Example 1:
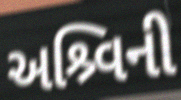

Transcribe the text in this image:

અશ્ર્વિની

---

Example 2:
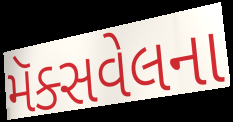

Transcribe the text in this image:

મૅક્સવેલના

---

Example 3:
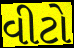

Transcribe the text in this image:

વીટો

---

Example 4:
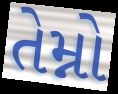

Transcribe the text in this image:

તેમ્નો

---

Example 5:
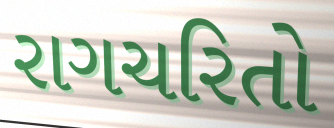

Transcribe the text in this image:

રાગચરિતો